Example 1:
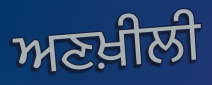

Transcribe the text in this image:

ਅਣਖ਼ੀਲੀ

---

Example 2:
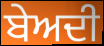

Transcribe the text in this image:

ਬੇਅਦੀ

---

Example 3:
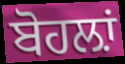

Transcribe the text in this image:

ਬੋਹਲ਼ਾਂ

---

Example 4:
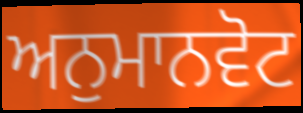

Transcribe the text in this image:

ਅਨੁਮਾਨਵੋਟ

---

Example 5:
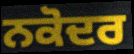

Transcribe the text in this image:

ਨਕੋਦਰ